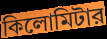
কিলোমিটার